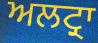
ਅਲਟ੍ਰਾ